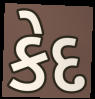
કેદ